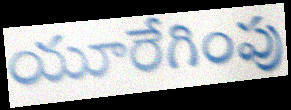
యూరేగింపు